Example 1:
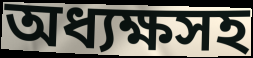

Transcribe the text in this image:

অধ্যক্ষসহ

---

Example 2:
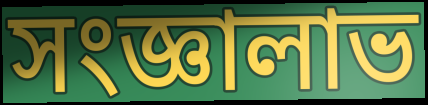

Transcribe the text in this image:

সংজ্ঞালাভ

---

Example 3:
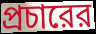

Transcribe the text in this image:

প্রচারের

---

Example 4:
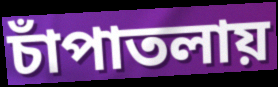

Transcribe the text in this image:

চাঁপাতলায়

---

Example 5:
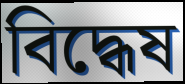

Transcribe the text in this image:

বিদ্ধেষ